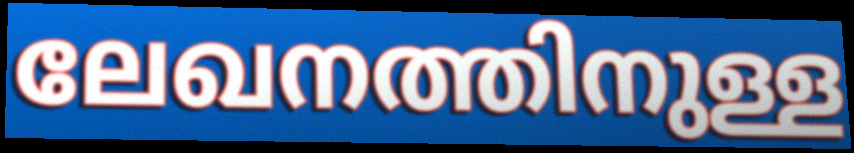
ലേഖനത്തിനുള്ള